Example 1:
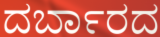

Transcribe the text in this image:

ದರ್ಬಾರದ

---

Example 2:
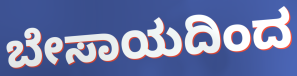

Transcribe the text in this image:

ಬೇಸಾಯದಿಂದ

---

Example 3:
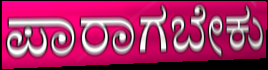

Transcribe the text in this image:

ಪಾರಾಗಬೇಕು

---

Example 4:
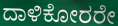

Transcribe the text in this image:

ದಾಳಿಕೋರರೇ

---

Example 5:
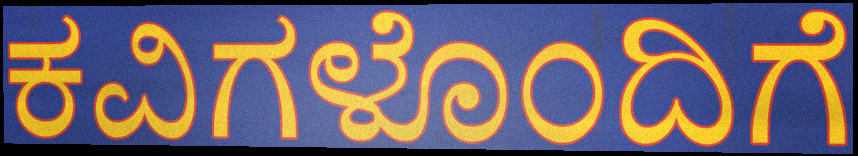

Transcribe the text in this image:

ಕವಿಗಳೊಂದಿಗೆ